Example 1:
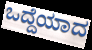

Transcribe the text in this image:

ಒದ್ದೆಯಾದ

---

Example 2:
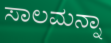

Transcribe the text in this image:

ಸಾಲಮನ್ನಾ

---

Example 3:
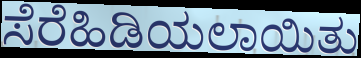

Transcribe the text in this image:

ಸೆರೆಹಿಡಿಯಲಾಯಿತು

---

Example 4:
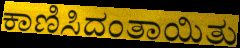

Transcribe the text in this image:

ಕಾಣಿಸಿದಂತಾಯಿತು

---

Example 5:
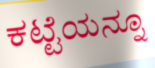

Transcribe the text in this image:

ಕಟ್ಟೆಯನ್ನೂ